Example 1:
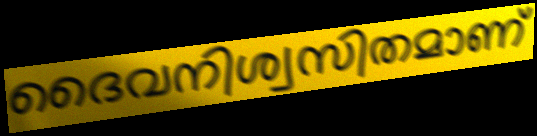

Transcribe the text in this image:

ദൈവനിശ്വസിതമാണ്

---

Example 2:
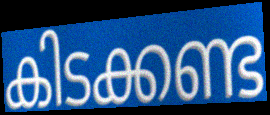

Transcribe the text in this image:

കിടക്കണ്ട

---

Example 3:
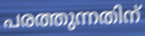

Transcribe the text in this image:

പരത്തുന്നതിന്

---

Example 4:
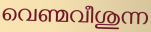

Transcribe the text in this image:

വെണ്മവീശുന്ന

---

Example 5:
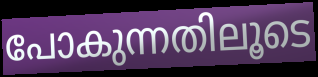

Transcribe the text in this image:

പോകുന്നതിലൂടെ